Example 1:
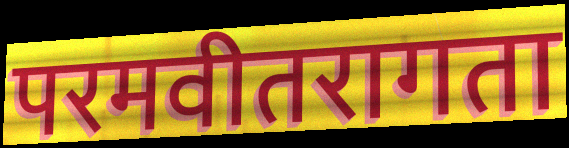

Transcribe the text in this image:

परमवीतरागता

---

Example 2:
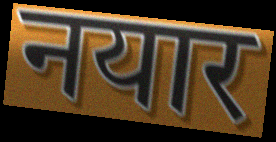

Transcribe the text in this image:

नयार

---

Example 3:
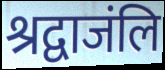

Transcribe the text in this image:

श्रद्वाजंलि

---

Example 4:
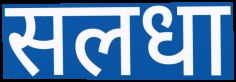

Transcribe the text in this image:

सलधा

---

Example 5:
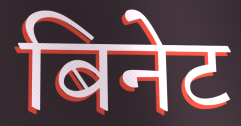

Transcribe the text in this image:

बिनेट